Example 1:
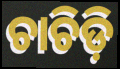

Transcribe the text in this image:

ଚାଚିଡ଼ି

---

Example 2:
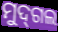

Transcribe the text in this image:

ମୁଦ୍‌ଗଲ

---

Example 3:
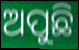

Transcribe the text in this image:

ଅପୁଛି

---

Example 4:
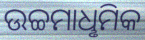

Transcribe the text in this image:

ଉଚ୍ଚମାଧୢମିକ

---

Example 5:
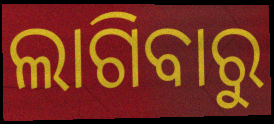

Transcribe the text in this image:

ଲାଗିବାରୁ